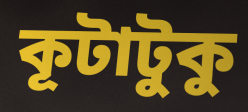
কূটাটুকু